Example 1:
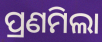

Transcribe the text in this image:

ପ୍ରଣମିଲା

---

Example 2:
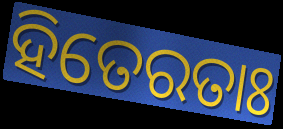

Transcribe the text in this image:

ହିତେରତାଃ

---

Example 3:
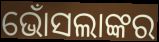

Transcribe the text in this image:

ଭୋଁସଲାଙ୍କର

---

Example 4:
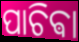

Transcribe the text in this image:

ପାଚିଵା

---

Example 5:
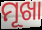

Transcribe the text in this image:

ମୂଖା